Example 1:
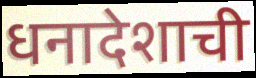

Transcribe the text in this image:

धनादेशाची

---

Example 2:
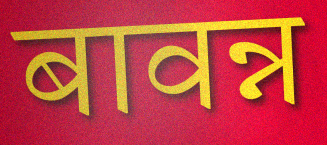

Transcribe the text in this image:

बावन्न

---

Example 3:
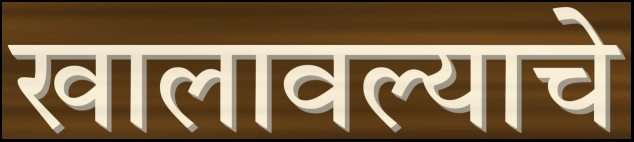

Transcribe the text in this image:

खालावल्याचे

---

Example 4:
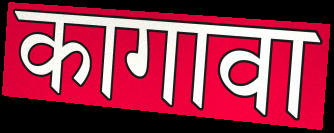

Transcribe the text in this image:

कागावा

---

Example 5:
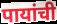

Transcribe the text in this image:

पायांची